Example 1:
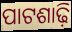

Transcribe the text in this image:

ପାଟଶାଢ଼ି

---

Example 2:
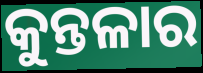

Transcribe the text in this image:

କୁନ୍ତଳାର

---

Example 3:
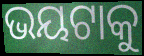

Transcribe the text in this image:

ଭୟଟାକୁ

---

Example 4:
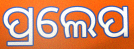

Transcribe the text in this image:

ପ୍ରଲେପ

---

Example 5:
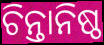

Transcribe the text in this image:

ଚିନ୍ତାନିଷ୍ଠ